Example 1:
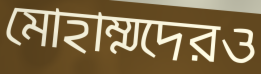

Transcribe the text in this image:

মোহাম্মদেরও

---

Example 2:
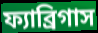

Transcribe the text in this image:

ফ্যাব্রিগাস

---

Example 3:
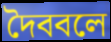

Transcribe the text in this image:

দৈববলে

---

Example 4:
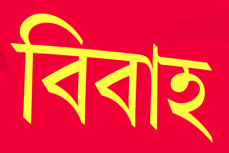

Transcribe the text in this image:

বিবাহ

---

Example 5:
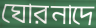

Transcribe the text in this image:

ঘোরনাদে